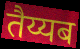
तैय्यब